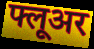
फ्लूअर